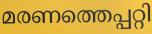
മരണത്തെപ്പറ്റി